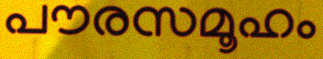
പൗരസമൂഹം